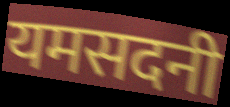
यमसदनी